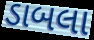
ડાબલા